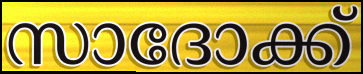
സാദോക്ക്